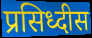
प्रसिध्दीस